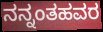
ನನ್ನಂತಹವರ